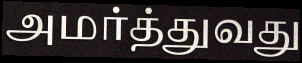
அமர்த்துவது